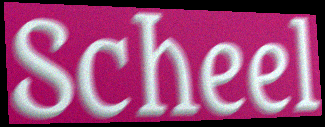
Scheel